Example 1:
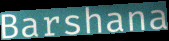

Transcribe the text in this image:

Barshana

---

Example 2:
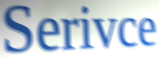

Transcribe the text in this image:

Serivce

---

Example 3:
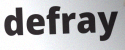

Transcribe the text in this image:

defray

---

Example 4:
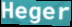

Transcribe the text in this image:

Heger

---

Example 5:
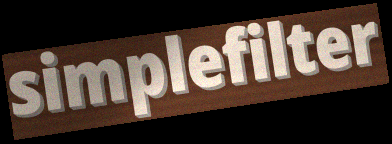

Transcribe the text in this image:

simplefilter